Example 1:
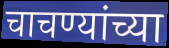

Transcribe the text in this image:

चाचण्यांच्या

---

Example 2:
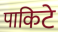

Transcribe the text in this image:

पाकिटे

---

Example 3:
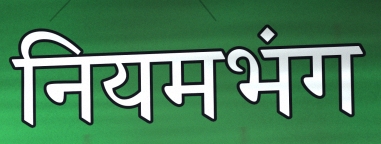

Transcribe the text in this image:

नियमभंग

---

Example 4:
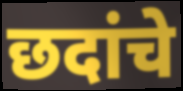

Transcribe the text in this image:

छदांचे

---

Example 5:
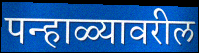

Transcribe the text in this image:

पन्हाळ्यावरील